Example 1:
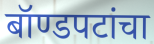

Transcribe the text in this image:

बॉण्डपटांचा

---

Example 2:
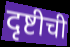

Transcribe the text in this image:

दृष्टीची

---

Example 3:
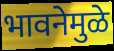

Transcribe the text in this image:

भावनेमुळे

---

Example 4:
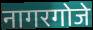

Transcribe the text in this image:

नागरगोजे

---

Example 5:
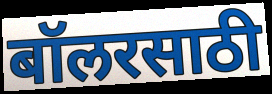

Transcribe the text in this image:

बॉलरसाठी